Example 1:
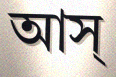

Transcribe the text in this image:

আস্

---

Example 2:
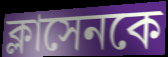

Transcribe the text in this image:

ক্লাসেনকে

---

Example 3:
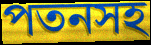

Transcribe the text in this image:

পতনসহ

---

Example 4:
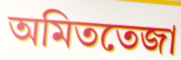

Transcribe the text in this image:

অমিততেজা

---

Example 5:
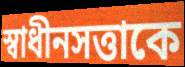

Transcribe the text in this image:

স্বাধীনসত্তাকে